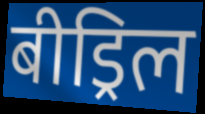
बीड्रिल